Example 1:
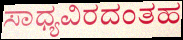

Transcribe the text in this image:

ಸಾಧ್ಯವಿರದಂತಹ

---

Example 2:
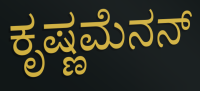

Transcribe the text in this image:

ಕೃಷ್ಣಮೆನನ್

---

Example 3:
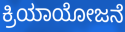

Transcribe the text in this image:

ಕ್ರಿಯಾಯೋಜನೆ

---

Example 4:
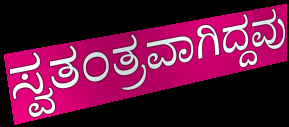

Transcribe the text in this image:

ಸ್ವತಂತ್ರವಾಗಿದ್ದವು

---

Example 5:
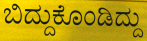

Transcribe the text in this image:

ಬಿದ್ದುಕೊಂಡಿದ್ದು